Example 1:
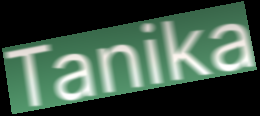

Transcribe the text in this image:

Tanika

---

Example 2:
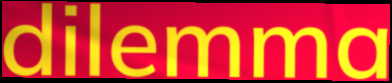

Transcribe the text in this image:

dilemma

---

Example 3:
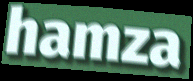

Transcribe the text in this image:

hamza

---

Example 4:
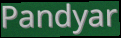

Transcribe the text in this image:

Pandyar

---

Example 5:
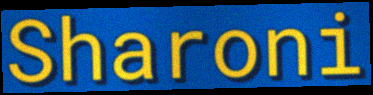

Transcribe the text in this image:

Sharoni